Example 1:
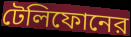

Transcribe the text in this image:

টেলিফোনের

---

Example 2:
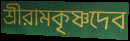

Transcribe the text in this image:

শ্রীরামকৃষ্ণদেব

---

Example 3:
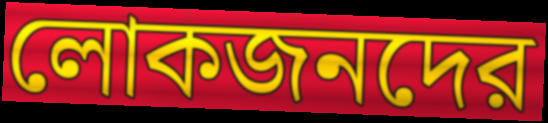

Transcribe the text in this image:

লোকজনদের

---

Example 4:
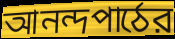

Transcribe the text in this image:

আনন্দপাঠের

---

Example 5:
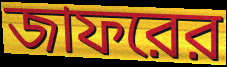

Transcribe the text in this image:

জাফরের